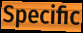
Specific